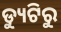
ଡ୍ୟୁଟିରୁ